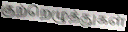
குற்றெழுத்துகள்